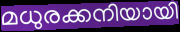
മധുരക്കനിയായി